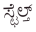
ಸ್ಟೆಲ್ತ್